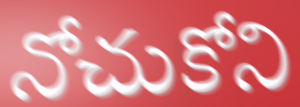
నోచుకోని